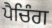
ਪੈਚਿੰਗ